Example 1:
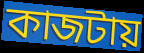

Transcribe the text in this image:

কাজটায়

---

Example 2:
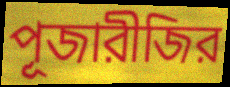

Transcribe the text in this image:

পূজারীজির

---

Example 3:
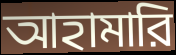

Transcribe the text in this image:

আহামারি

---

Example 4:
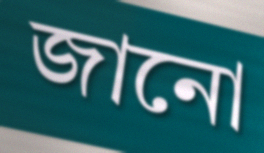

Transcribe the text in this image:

জানো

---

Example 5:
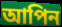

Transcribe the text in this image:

আপিন